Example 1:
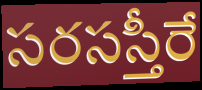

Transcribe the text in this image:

సరసస్తీరే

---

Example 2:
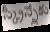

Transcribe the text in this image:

స్క్రీన్ప్లేకు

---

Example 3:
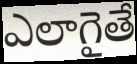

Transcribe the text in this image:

ఎలాగైతే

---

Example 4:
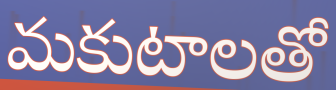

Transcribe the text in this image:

మకుటాలతో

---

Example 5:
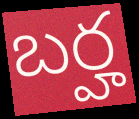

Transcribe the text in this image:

బర్హ